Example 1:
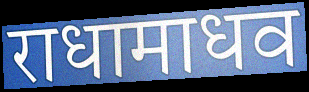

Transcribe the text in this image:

राधामाधव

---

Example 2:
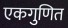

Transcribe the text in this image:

एकगुणित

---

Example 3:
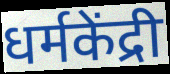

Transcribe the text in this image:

धर्मकेंद्री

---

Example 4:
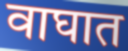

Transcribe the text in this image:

वाघात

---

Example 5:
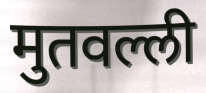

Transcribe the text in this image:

मुतवल्ली